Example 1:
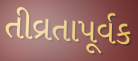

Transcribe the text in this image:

તીવ્રતાપૂર્વક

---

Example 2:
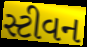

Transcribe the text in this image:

સ્ટીવન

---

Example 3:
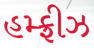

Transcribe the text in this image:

હમ્ફ્રીઝ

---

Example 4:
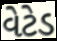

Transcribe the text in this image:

વેટેડ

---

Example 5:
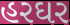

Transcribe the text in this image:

હરઘર